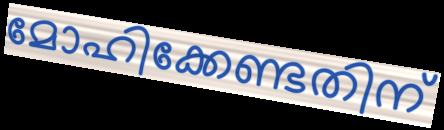
മോഹിക്കേണ്ടതിന്